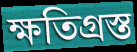
ক্ষতিগ্রস্ত